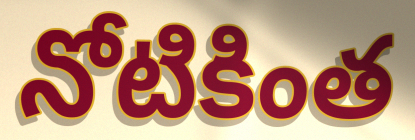
నోటికింత